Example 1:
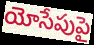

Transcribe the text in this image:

యోసేపుపై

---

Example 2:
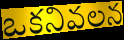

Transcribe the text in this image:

ఒకనివలన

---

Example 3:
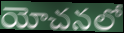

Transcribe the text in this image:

యోచనలో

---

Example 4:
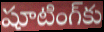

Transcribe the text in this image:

షూటింగ్‌కు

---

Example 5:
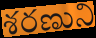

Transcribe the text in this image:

శరణుని